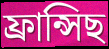
ফ্ৰান্সিছ